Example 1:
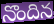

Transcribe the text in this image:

నొందిన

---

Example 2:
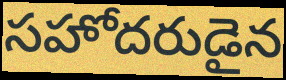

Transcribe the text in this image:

సహోదరుడైన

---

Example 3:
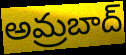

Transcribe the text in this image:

అమ్రబాద్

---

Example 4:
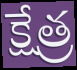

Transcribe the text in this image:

క్షేత్ర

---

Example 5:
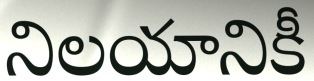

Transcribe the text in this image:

నిలయానికీ